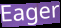
Eager